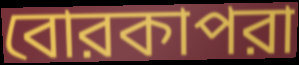
বোরকাপরা